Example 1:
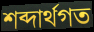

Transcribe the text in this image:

শব্দার্থগত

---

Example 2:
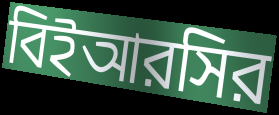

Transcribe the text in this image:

বিইআরসির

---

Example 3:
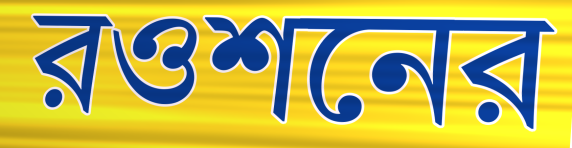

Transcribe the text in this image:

রওশনের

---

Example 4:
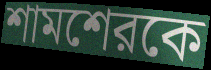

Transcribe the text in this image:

শামশেরকে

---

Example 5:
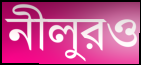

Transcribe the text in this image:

নীলুরও